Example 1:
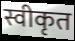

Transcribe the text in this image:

स्‍वीकृत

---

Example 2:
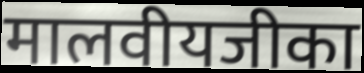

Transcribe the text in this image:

मालवीयजीका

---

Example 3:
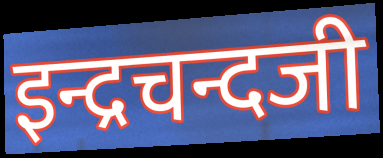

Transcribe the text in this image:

इन्द्रचन्दजी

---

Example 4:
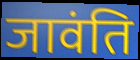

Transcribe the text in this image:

जावंति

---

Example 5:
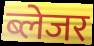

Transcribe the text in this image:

ब्लेजर